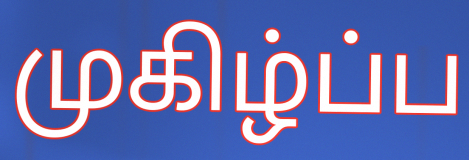
முகிழ்ப்ப